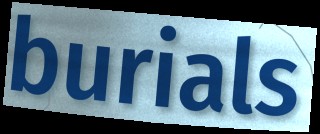
burials